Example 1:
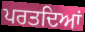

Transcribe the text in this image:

ਪਰਤਦਿਆਂ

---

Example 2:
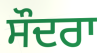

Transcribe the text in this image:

ਸੌਦਰਾ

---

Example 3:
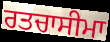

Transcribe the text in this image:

ਰਤਚਾਸੀਮਾ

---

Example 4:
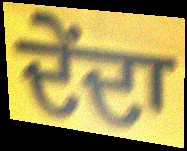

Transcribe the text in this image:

ਦੇਂਦਾ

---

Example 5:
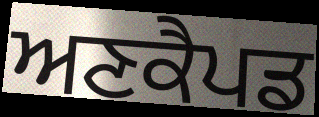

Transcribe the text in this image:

ਅਣਕੈਪਡ